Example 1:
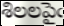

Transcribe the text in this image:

శిలలపైఁ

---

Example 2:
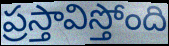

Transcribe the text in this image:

ప్రస్తావిస్తోంది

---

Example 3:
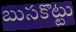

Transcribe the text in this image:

బుసకొట్టు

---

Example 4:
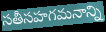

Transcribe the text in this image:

సతీసహగమనాన్ని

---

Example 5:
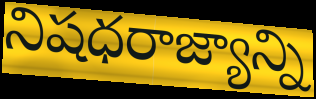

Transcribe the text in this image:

నిషధరాజ్యాన్ని